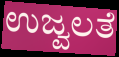
ಉಜ್ವಲತೆ